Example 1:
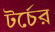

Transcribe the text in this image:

টর্চের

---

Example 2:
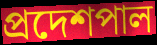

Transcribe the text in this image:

প্রদেশপাল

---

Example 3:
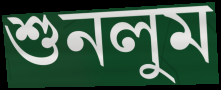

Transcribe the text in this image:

শুনলুম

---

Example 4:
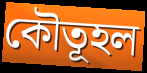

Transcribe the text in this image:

কৌতূহল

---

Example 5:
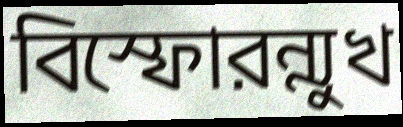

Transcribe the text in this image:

বিস্ফোরন্মুখ